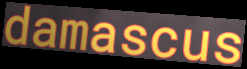
damascus